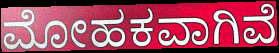
ಮೋಹಕವಾಗಿವೆ